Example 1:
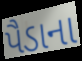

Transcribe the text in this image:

પૈડાના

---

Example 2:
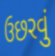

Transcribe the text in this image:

ઉછરવું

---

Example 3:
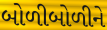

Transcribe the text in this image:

બોળીબોળીને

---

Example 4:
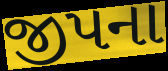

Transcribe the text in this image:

જીપના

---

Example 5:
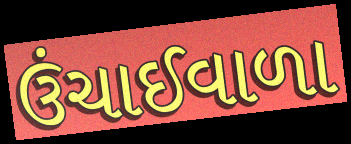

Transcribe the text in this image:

ઉંચાઈવાળા